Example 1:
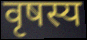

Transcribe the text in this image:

वृषस्य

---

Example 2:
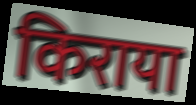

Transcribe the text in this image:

किराया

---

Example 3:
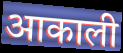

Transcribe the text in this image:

आकाली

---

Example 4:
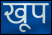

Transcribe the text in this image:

खूप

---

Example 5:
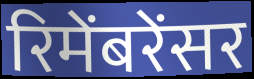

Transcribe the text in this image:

रिमेंबरेंसर